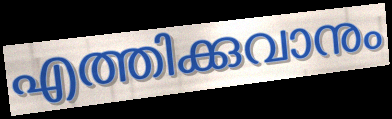
എത്തിക്കുവാനും